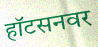
हॉटसनवर